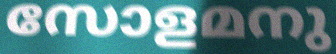
സോളമനു